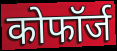
कोफॉर्ज